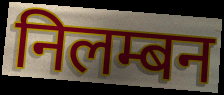
निलम्‍बन